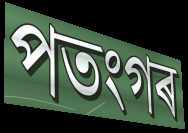
পতংগৰ